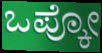
ಒಪ್ಕೋ